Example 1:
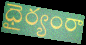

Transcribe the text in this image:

ధైర్యంరా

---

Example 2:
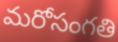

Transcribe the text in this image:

మరోసంగతి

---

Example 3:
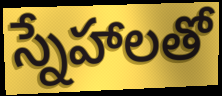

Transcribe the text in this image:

స్నేహాలతో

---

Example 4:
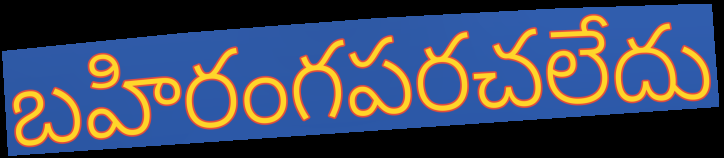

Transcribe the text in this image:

బహిరంగపరచలేదు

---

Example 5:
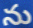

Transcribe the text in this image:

ను